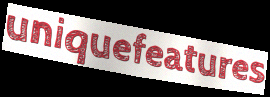
uniquefeatures